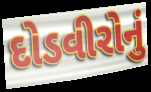
દોડવીરોનું